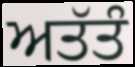
ਅਤੱਤੰ